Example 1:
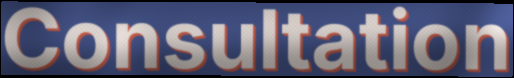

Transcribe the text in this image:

Consultation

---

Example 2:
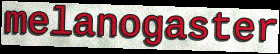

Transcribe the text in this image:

melanogaster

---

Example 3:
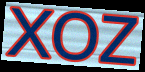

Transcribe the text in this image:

XOZ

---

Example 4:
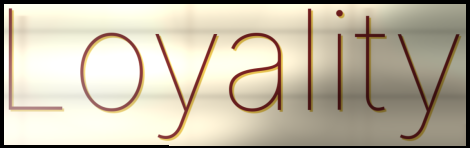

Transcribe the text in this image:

Loyality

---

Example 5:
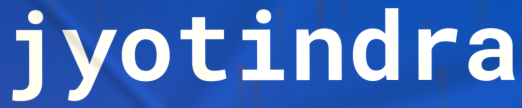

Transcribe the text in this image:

jyotindra